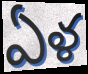
ఏళ